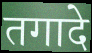
तगादे